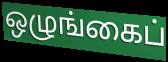
ஒழுங்கைப்